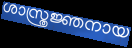
ശാസ്ത്രജ്ഞനായ